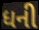
ધની